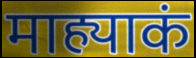
माह्याकं